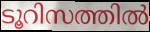
ടൂറിസത്തിൽ